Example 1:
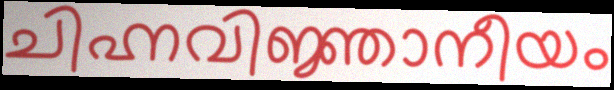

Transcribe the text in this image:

ചിഹ്നവിജ്ഞാനീയം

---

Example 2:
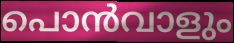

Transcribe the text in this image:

പൊൻവാളും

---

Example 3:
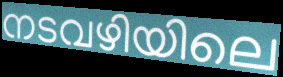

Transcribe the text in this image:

നടവഴിയിലെ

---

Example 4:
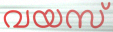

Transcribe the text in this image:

വയസ്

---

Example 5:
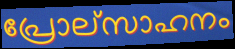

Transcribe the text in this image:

പ്രോല്സാഹനം